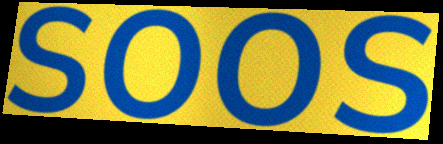
soos